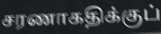
சரணாகதிக்குப்